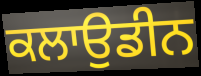
ਕਲਾਉਡੀਨ